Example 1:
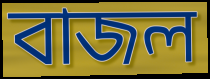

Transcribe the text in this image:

বাজল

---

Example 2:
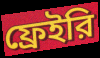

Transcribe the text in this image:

ফ্রেইরি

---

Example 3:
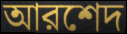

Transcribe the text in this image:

আরশেদ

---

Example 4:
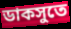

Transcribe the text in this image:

ডাকসুতে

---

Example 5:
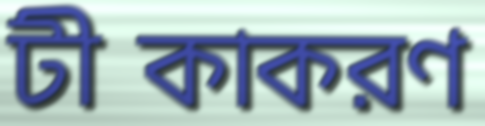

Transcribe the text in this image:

টীকাকরণ